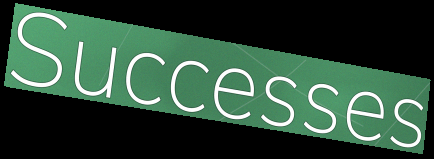
Successes